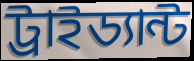
ট্রাইড্যান্ট